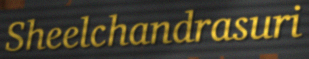
Sheelchandrasuri